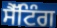
ਸੈੱਟਿੰਗ